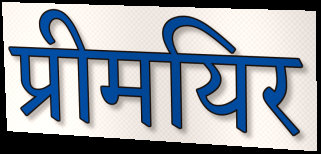
प्रीमयिर